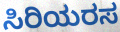
ಸಿರಿಯರಸ